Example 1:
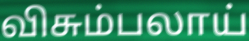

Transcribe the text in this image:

விசும்பலாய்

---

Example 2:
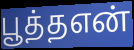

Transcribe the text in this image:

பூத்தஎன்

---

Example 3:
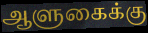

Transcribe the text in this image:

ஆளுகைக்கு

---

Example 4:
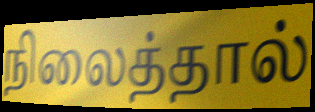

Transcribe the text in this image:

நிலைத்தால்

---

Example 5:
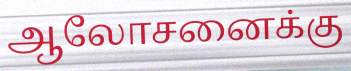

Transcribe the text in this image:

ஆலோசனைக்கு